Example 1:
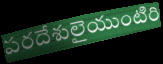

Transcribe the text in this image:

పరదేశులైయుంటిరి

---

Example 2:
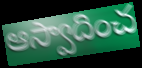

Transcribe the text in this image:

ఆస్వాదించ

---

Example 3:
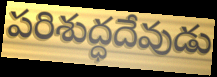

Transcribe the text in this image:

పరిశుద్ధదేవుడు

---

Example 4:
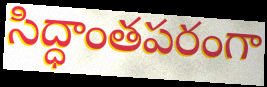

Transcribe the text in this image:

సిద్ధాంతపరంగా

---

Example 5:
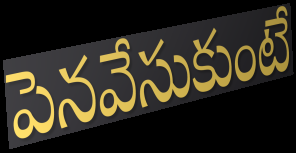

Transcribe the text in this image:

పెనవేసుకుంటే